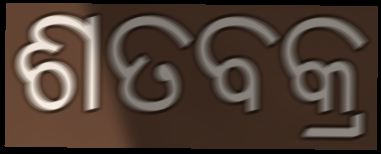
ଶତବକ୍ର